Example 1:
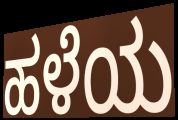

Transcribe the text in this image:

ಹಳೆಯ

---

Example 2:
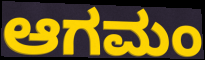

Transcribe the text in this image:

ಆಗಮಂ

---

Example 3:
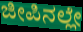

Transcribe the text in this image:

ಜೀಪಿನಲ್ಲೇ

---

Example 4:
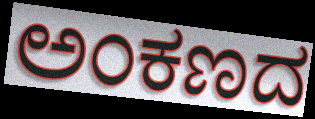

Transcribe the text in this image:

ಅಂಕಣದ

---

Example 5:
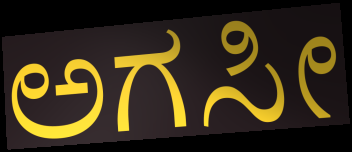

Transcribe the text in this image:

ಅಗಸೀ